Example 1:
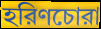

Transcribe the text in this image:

হরিণচোরা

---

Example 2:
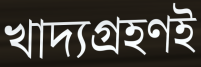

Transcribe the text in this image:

খাদ্যগ্রহণই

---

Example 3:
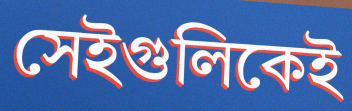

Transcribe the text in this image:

সেইগুলিকেই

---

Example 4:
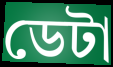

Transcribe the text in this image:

ডেটা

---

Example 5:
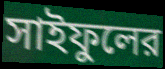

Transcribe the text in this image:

সাইফুলের